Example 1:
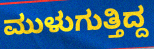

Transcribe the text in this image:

ಮುಳುಗುತ್ತಿದ್ದ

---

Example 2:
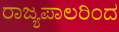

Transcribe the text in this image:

ರಾಜ್ಯಪಾಲರಿಂದ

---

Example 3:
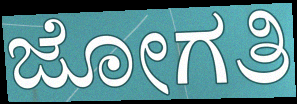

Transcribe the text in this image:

ಜೋಗತಿ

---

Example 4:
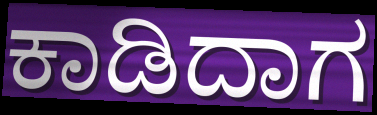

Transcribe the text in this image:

ಕಾಡಿದಾಗ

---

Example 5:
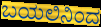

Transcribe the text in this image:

ಬಯಲಿನಿಂದ